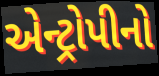
એન્ટ્રોપીનો